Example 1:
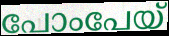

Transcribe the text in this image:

പോംപേയ്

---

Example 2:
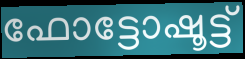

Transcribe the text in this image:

ഫോട്ടോഷൂട്ട്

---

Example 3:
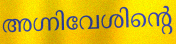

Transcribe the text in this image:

അഗ്നിവേശിന്റെ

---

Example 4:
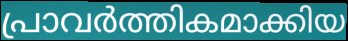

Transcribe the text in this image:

പ്രാവർത്തികമാക്കിയ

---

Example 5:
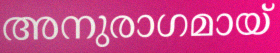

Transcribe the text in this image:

അനുരാഗമായ്